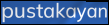
pustakayan